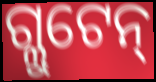
ଗ୍ଲୁଟେନ୍